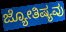
ಜ್ಯೋತಿಷ್ಯವು